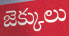
జెక్కులు